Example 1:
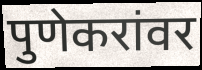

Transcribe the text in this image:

पुणेकरांवर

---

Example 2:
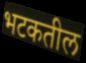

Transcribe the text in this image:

भटकतील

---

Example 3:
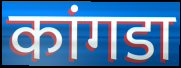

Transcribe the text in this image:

कांगडा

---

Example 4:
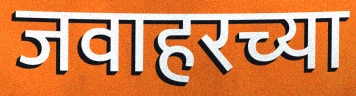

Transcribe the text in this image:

जवाहरच्या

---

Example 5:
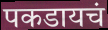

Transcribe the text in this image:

पकडायचं